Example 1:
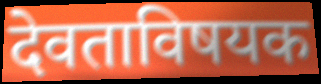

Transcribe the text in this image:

देवताविषयक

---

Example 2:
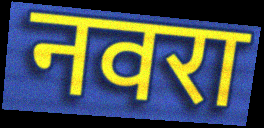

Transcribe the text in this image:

नवरा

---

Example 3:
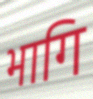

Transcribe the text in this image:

भागि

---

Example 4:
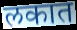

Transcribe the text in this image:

लकात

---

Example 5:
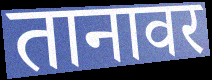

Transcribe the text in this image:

तानावर